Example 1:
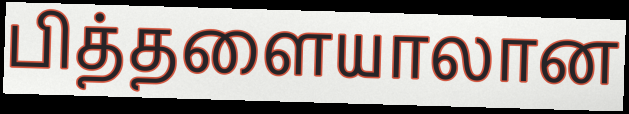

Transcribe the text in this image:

பித்தளையாலான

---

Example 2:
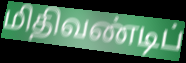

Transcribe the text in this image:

மிதிவண்டிப்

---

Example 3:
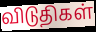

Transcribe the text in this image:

விடுதிகள்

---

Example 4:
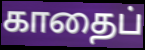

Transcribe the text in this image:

காதைப்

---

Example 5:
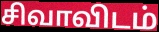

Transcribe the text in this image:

சிவாவிடம்